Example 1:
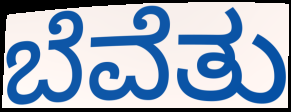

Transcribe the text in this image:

ಬೆವೆತು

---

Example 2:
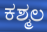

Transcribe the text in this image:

ಕಶ್ಮಲ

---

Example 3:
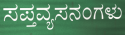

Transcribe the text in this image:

ಸಪ್ತವ್ಯಸನಂಗಳು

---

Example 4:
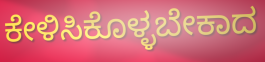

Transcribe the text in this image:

ಕೇಳಿಸಿಕೊಳ್ಳಬೇಕಾದ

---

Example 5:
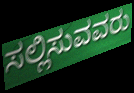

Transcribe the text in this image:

ಸಲ್ಲಿಸುವವರು